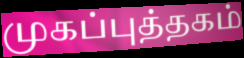
முகப்புத்தகம்